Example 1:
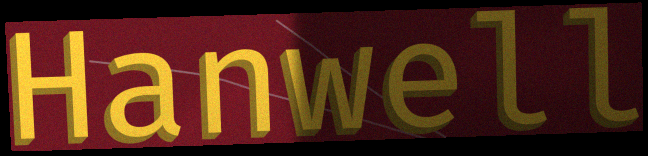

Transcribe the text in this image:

Hanwell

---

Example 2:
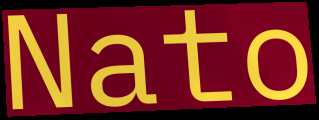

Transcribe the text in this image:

Nato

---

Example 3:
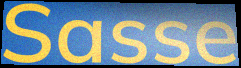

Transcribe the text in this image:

Sasse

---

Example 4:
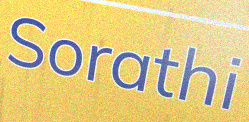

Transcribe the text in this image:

Sorathi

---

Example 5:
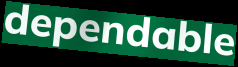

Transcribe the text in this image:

dependable